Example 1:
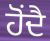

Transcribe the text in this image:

ਹੋਂਦੈ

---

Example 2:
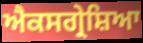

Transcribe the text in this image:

ਐਕਸਗ੍ਰੇਸ਼ਿਆ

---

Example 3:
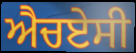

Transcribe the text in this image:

ਐਚਏਸੀ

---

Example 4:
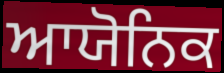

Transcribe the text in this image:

ਆਯੋਨਿਕ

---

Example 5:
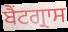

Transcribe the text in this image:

ਬੈਂਟਗ੍ਰਾਸ